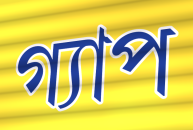
গ্যাপ